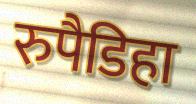
रुपैडिहा